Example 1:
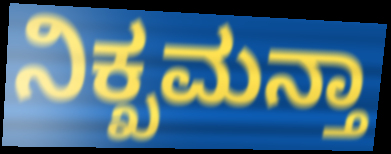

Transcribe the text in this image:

ನಿಕ್ಖಮನ್ತಾ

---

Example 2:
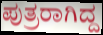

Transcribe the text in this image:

ಪುತ್ರರಾಗಿದ್ದ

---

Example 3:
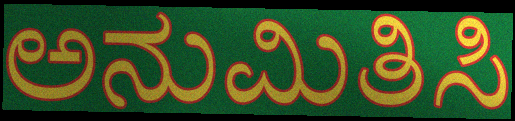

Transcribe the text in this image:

ಅನುಮಿತಿಸಿ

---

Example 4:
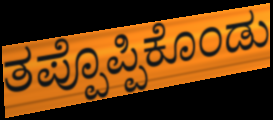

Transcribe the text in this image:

ತಪ್ಪೊಪ್ಪಿಕೊಂಡು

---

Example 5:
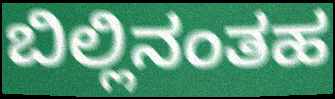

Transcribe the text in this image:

ಬಿಲ್ಲಿನಂತಹ